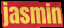
jasmin